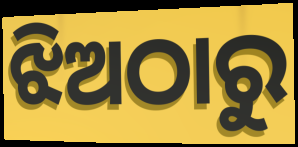
ଝିଅଠାରୁ